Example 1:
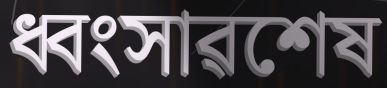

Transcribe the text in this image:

ধ্বংসাৱশেষ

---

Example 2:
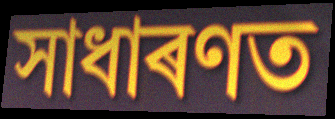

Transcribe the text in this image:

সাধাৰণত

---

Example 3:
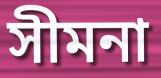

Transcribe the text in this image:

সীমনা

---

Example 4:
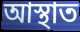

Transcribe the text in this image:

আস্থাত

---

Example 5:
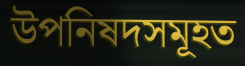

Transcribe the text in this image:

উপনিষদসমূহত